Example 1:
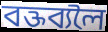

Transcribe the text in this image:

বক্তব্যলৈ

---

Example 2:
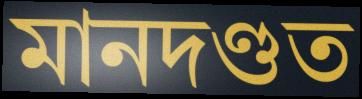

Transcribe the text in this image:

মানদণ্ডত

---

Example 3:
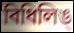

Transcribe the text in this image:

বিধিলিঙ্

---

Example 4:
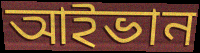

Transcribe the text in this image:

আইভান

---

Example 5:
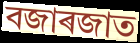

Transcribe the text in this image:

বজাৰজাত